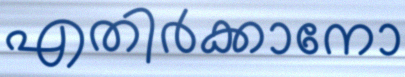
എതിർക്കാനോ